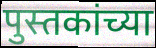
पुस्तकांच्या